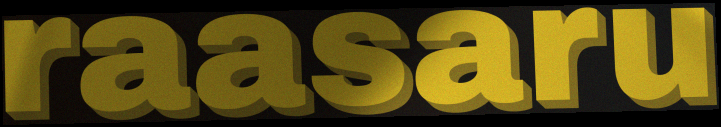
raasaru